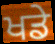
ਖਡੇ